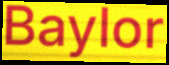
Baylor